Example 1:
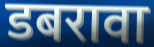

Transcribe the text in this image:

डबरावा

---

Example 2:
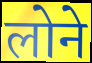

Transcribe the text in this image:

लोने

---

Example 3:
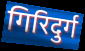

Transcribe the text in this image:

गिरिदुर्ग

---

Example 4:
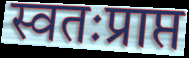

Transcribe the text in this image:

स्वतःप्राप्त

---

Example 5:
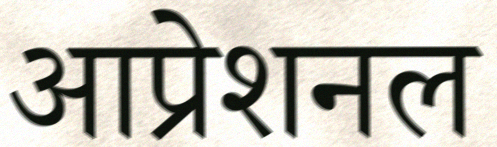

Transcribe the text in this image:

आप्रेशनल